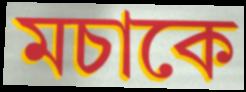
মচাকে